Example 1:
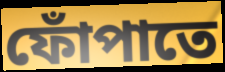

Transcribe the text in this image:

ফোঁপাতে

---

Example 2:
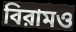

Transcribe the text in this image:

বিরামও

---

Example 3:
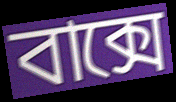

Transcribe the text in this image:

বাক্সে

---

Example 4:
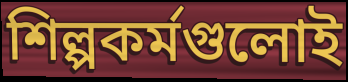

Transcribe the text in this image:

শিল্পকর্মগুলোই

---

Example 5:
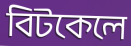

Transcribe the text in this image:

বিটকেলে